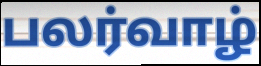
பலர்வாழ்